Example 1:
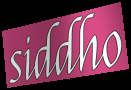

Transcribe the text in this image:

siddho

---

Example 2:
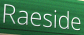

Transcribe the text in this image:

Raeside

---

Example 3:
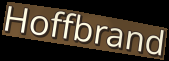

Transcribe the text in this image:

Hoffbrand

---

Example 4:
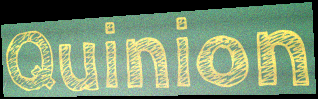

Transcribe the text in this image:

Quinion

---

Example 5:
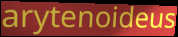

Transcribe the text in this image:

arytenoideus